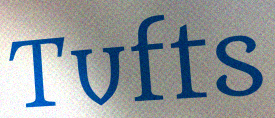
Tufts